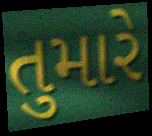
તુમારે